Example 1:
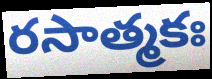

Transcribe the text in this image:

రసాత్మకః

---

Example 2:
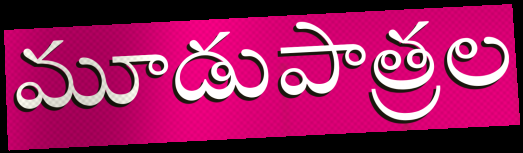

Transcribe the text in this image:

మూడుపాత్రల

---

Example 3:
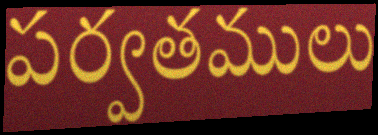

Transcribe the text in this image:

పర్వతములు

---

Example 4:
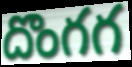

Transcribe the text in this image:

దొంగగ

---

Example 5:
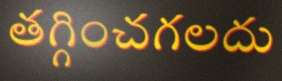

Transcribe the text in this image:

తగ్గించగలదు